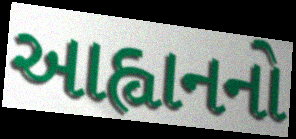
આહ્વાનનો